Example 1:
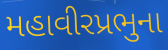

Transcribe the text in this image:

મહાવીરપ્રભુના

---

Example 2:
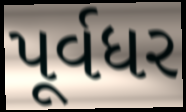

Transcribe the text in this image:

પૂર્વધર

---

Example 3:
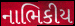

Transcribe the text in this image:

નાભિકીય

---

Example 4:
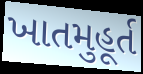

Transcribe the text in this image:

ખાતમુહૂર્ત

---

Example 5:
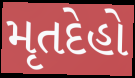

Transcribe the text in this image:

મૃતદેહો